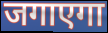
जगाएगा